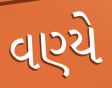
વણ્યે